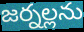
జర్నల్లను